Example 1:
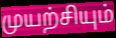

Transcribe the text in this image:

முயற்சியும்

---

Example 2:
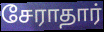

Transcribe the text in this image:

சேராதார்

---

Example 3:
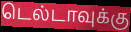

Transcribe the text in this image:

டெல்டாவுக்கு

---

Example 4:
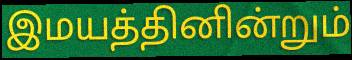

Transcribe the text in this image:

இமயத்தினின்றும்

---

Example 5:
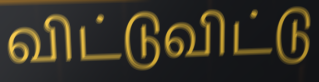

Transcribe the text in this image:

விட்டுவிட்டு